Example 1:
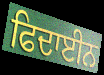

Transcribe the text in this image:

ਫਿਦਾਈਨ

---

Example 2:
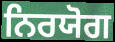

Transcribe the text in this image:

ਨਿਰਯੋਗ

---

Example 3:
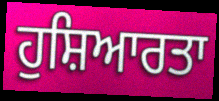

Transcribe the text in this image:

ਹੁਸ਼ਿਆਰਤਾ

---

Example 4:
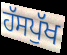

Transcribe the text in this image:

ਹੱਸਪੁੱਖ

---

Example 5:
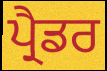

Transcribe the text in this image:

ਪ੍ਰੈਡਰ